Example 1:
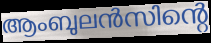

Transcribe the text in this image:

ആംബുലൻസിന്റെ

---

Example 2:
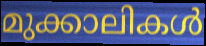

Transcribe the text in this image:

മുക്കാലികൾ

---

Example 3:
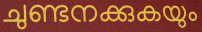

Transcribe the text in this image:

ചുണ്ടനക്കുകയും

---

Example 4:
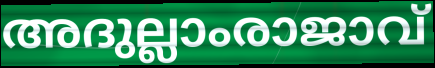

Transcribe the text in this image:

അദുല്ലാംരാജാവ്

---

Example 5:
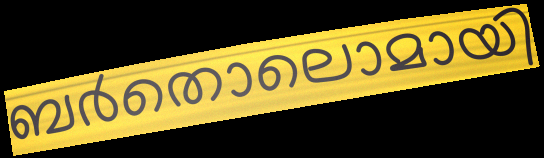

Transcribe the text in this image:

ബർതൊലൊമായി